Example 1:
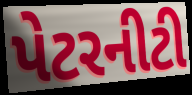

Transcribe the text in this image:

પેટરનીટી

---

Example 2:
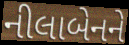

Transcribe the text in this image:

નીલાબેનને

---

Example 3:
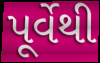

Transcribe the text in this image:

પૂર્વેથી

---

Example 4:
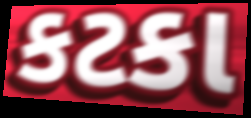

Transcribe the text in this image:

કટકા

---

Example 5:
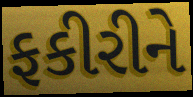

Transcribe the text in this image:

ફકીરીને